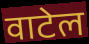
वाटेल